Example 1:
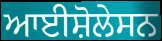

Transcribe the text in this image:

ਆਈਸ਼ੋਲੇਸਨ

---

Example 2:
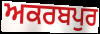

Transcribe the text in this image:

ਅਕਰਬਪੁਰ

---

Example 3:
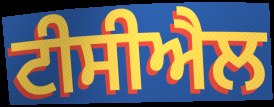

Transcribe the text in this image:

ਟੀਸੀਐਲ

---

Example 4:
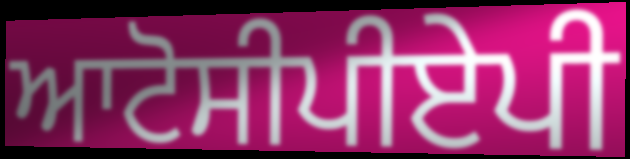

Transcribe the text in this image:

ਆਟੋਸੀਪੀਏਪੀ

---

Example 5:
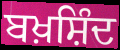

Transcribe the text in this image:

ਬਖ਼ਸ਼ਿੰਦ